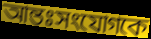
আন্তঃসংযোগকে